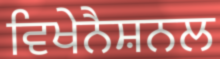
ਵਿਖੇਨੈਸ਼ਨਲ